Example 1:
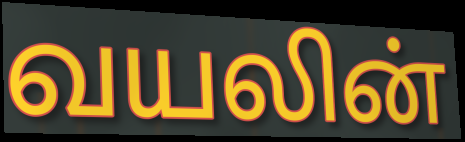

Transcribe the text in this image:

வயலின்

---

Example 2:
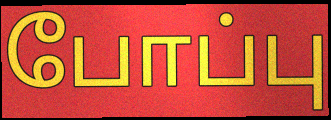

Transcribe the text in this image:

போப்பு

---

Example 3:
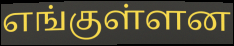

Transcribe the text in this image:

எங்குள்ளன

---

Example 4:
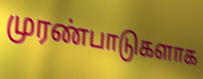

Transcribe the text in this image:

முரண்பாடுகளாக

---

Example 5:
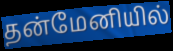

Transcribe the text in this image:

தன்மேனியில்